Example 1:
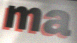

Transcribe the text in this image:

ma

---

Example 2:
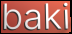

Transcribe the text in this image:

baki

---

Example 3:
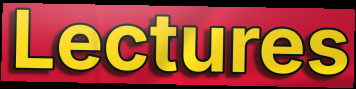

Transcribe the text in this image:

Lectures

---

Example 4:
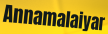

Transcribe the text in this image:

Annamalaiyar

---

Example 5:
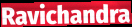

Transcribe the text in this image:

Ravichandra